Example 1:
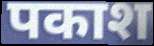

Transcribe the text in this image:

पकाश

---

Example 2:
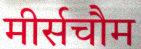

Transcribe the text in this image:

मीर्सचौम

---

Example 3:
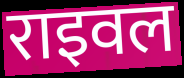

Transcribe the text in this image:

राइवल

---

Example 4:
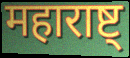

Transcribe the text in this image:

महाराष्ट्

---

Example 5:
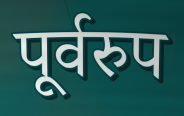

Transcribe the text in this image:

पूर्वरुप